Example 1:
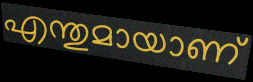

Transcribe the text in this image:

എന്തുമായാണ്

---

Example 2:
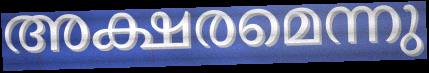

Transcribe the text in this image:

അക്ഷരമെന്നു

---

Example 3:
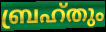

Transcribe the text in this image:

ബ്രഹ്തും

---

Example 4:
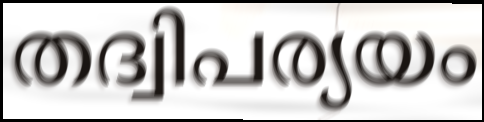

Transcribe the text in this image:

തദ്വിപര്യയം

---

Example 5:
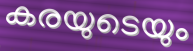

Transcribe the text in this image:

കരയുടെയും